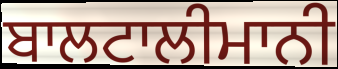
ਬਾਲਟਾਲੀਮਾਨੀ